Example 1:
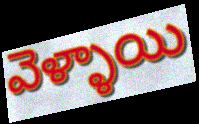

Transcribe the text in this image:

వెళ్ళాయి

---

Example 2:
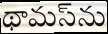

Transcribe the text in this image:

థామస్‌ను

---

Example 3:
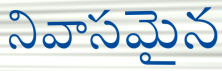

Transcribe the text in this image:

నివాసమైన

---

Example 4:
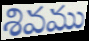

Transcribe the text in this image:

శివము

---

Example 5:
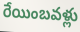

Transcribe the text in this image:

రేయింబవళ్లు